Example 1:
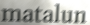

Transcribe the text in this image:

matalun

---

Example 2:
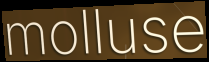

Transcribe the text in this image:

molluse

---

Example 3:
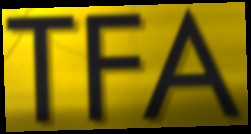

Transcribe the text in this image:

TFA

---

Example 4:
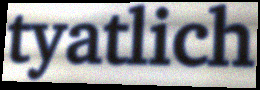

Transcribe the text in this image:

tyatlich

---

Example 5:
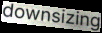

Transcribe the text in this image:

downsizing